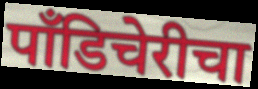
पाँडिचेरीचा